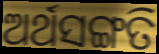
ଅର୍ଥସଙ୍ଗତି